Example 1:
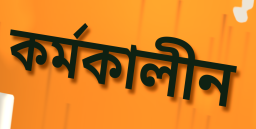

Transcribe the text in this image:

কর্মকালীন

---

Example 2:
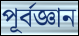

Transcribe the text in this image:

পূর্বজ্ঞান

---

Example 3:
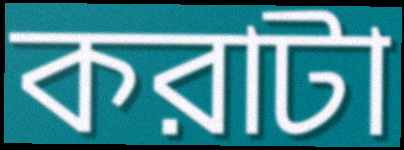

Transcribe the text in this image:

করাটা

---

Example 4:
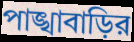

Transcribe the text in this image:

পাঙ্খাবাড়ির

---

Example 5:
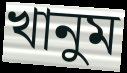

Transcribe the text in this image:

খানুম